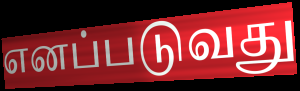
எனப்படுவது